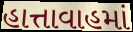
હાત્તાવાહમાં